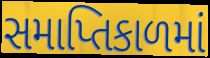
સમાપ્તિકાળમાં